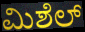
ಮಿಶೆಲ್